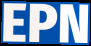
EPN